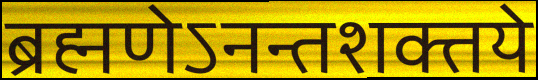
ब्रह्मणेऽनन्तशक्तये